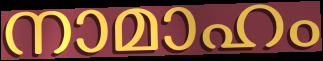
നാമാഹം